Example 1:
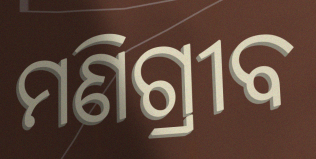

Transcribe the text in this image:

ମଣିଗ୍ରୀବ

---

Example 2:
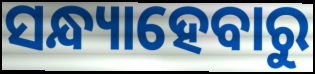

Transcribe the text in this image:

ସନ୍ଧ୍ୟାହେବାରୁ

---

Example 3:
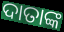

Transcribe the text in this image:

ଦାତାଙ୍କ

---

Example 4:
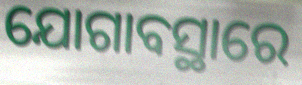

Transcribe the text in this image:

ଯୋଗାବସ୍ଥାରେ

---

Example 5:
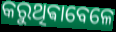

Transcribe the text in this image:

କରୁଥିଵାବେଳେ